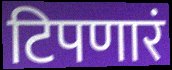
टिपणारं